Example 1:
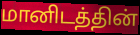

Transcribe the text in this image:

மானிடத்தின்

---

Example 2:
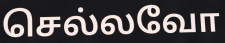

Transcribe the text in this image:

செல்லவோ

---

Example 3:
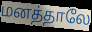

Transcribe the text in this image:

மனத்தாலே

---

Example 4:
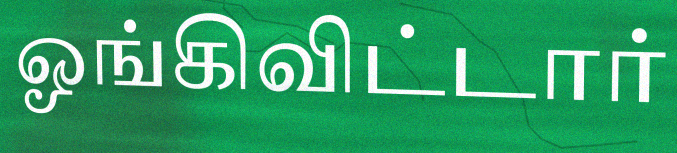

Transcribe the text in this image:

ஓங்கிவிட்டார்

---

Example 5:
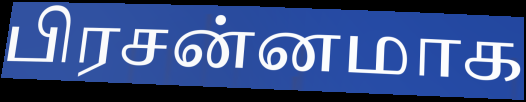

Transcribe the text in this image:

பிரசன்னமாக